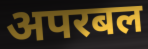
अपरबल